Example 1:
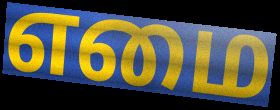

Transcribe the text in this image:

எமை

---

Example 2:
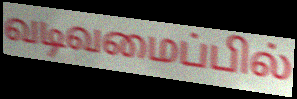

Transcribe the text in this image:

வடிவமைப்பில்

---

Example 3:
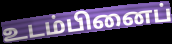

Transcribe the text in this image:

உடம்பினைப்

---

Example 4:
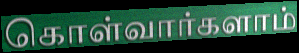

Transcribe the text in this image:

கொள்வார்களாம்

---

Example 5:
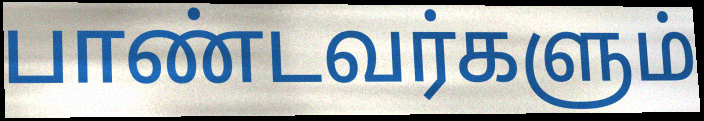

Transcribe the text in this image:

பாண்டவர்களும்